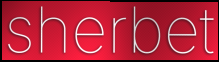
sherbet